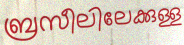
ബ്രസീലിലേക്കുള്ള